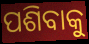
ପଶିବାକୁ